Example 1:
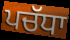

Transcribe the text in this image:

ਪਚੱਧਾ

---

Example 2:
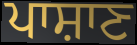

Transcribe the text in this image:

ਪਾਸ਼ਾਣ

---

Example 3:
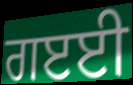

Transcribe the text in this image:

ਗੲਈ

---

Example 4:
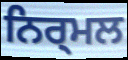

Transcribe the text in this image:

ਨਿਰ੍ਮਲ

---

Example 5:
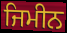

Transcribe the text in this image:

ਜਿਮੀਨ